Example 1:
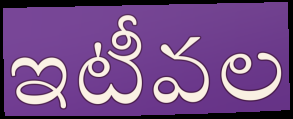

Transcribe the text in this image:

ఇటీవల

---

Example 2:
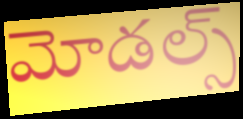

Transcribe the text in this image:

మోడల్స్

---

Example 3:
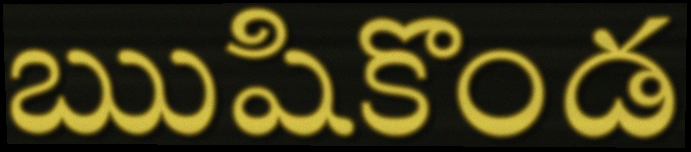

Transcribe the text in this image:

ఋషికొండ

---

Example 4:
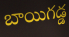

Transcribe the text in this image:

బాయిగడ్డ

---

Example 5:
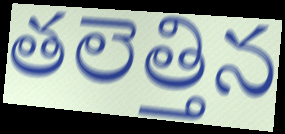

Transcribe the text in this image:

తలెత్తిన